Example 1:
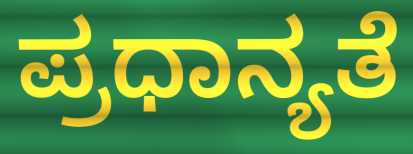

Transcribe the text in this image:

ಪ್ರಧಾನ್ಯತೆ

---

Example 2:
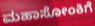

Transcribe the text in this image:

ಮಹಾಸೋಂಕಿಗೆ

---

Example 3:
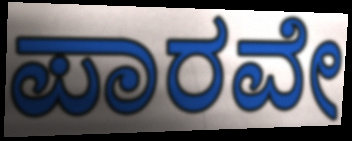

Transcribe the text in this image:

ಪಾರವೇ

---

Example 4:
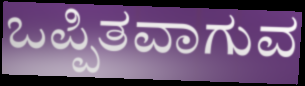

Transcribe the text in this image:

ಒಪ್ಪಿತವಾಗುವ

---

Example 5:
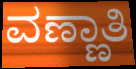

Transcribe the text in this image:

ವಣ್ಣಾತಿ